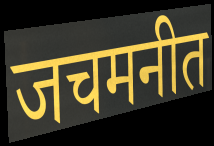
जचमनीत